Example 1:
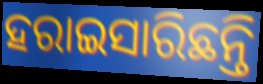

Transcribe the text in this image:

ହରାଇସାରିଛନ୍ତି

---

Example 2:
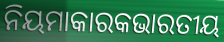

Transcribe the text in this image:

ନିୟମାକାରକଭାରତୀୟ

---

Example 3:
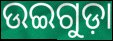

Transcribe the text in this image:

ଉଇଗୁଡ଼ା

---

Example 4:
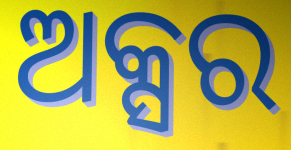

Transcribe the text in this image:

ଅକ୍ସର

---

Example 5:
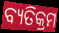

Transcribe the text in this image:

ବ୍ଯତିକ୍ରମ